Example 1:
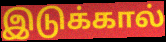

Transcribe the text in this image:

இடுக்கால்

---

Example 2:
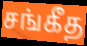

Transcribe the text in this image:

சங்கீத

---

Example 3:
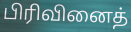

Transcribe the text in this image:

பிரிவினைத்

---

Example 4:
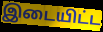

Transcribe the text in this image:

இடையிட்ட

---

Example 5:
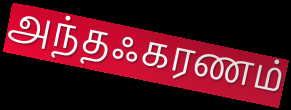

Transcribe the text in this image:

அந்தஃகரணம்